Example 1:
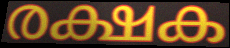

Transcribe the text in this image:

രക്ഷക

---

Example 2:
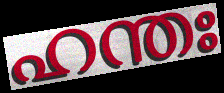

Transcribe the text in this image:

ഹന്തഃ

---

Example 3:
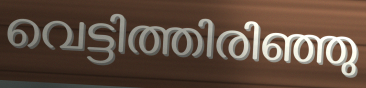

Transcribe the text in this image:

വെട്ടിത്തിരിഞ്ഞു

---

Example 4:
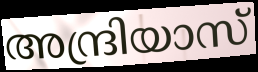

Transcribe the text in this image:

അന്ദ്രിയാസ്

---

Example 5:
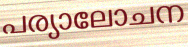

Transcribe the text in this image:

പര്യാലോചന